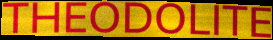
THEODOLITE